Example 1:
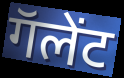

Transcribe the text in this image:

गॅलेंट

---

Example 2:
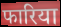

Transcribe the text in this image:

फारिया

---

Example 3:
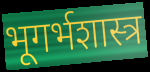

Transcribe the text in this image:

भूगर्भशास्त्र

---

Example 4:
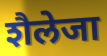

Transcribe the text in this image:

शैलेजा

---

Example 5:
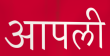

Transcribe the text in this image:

आपली